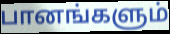
பானங்களும்